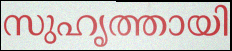
സുഹൃത്തായി